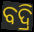
ବଦ୍ରି